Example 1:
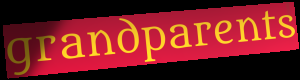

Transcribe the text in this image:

grandparents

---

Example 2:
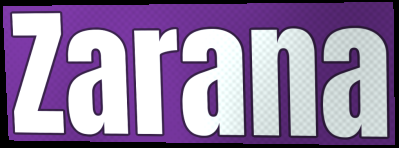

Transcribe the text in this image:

Zarana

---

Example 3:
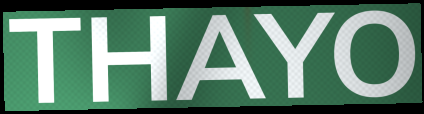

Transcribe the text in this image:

THAYO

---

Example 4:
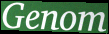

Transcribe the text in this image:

Genom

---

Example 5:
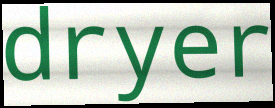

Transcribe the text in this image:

dryer